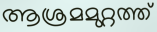
ആശ്രമമുറ്റത്ത്